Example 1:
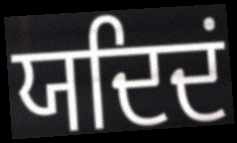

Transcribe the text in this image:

ਯਦਿਦਂ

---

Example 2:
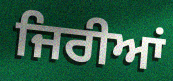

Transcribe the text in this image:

ਜਿਰੀਆਂ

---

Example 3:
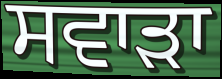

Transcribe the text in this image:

ਸਵਾੜਾ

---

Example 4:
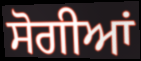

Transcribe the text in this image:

ਸੋਗੀਆਂ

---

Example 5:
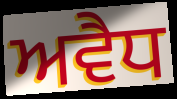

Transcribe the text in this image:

ਅਵੈਧ